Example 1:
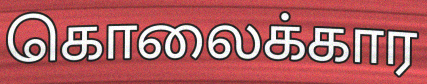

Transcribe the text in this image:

கொலைக்கார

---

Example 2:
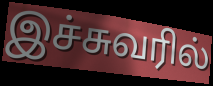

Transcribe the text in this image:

இச்சுவரில்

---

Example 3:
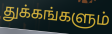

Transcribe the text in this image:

துக்கங்களும்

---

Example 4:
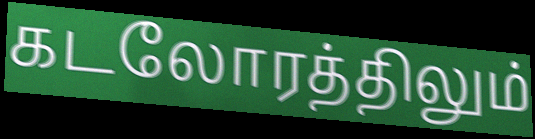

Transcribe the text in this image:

கடலோரத்திலும்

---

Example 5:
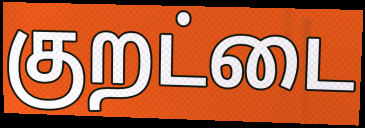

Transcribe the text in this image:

குறட்டை